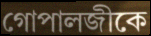
গোপালজীকে